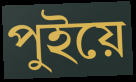
পুইয়ে